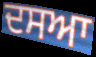
ਦਸਆ